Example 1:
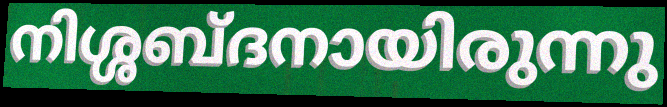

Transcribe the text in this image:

നിശ്ശബ്ദനായിരുന്നു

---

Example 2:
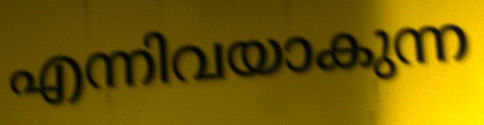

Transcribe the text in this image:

എന്നിവയാകുന്ന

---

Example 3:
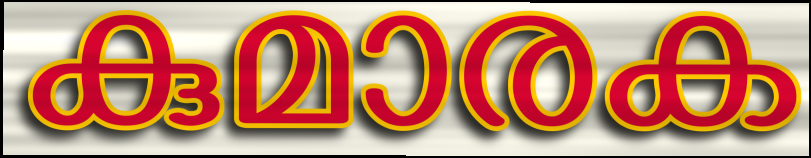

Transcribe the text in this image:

കുമാരക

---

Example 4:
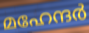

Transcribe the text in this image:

മഹേന്ദർ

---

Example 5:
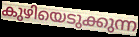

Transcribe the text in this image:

കുഴിയെടുക്കുന്ന